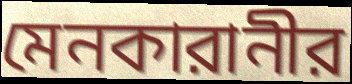
মেনকারানীর